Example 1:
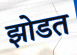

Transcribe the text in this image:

झोडत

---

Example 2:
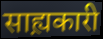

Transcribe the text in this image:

साह्य़कारी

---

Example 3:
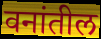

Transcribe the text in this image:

वनांतील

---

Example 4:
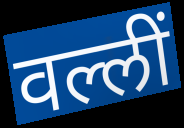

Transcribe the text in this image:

वल्लीं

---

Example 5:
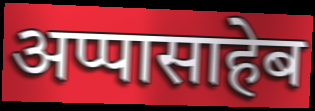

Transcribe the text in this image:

अप्पासाहेब